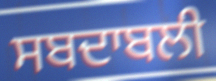
ਸਬਦਾਬਲੀ